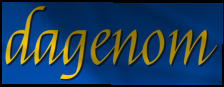
dagenom